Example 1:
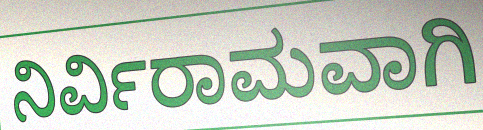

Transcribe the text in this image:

ನಿರ್ವಿರಾಮವಾಗಿ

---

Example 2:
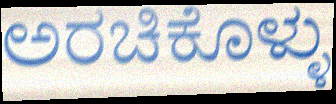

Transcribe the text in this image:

ಅರಚಿಕೊಳ್ಳು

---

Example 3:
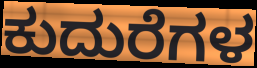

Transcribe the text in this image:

ಕುದುರೆಗಳ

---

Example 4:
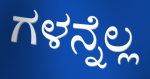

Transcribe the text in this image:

ಗಳನ್ನೆಲ್ಲ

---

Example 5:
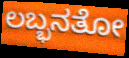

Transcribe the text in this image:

ಲಬ್ಭನತೋ